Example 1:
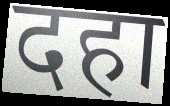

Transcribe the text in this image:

दहा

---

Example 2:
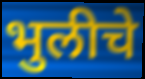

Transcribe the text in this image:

भुलीचे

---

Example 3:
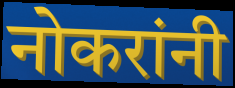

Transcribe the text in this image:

नोकरांनी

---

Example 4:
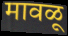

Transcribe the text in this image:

मावळू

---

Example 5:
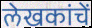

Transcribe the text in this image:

लेखकांचें